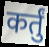
कर्तुं